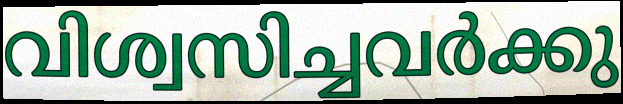
വിശ്വസിച്ചവർക്കു